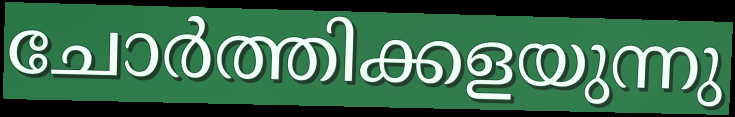
ചോർത്തിക്കളയുന്നു